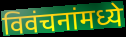
विवंचनांमध्ये